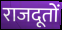
राजदूतों